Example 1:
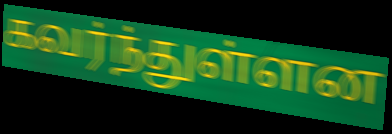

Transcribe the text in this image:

கவர்ந்துள்ளன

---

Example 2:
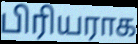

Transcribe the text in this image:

பிரியராக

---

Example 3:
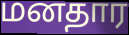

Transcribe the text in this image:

மனதார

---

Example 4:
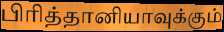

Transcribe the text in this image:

பிரித்தானியாவுக்கும்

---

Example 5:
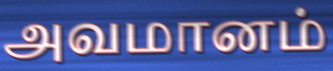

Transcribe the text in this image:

அவமானம்